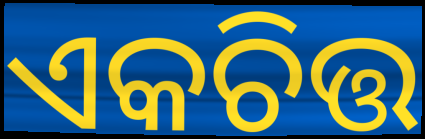
ଏକଚିତ୍ତ